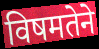
विषमतेने